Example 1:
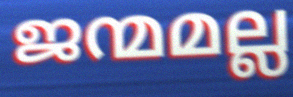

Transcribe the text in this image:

ജന്മമല്ല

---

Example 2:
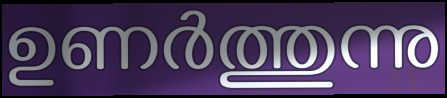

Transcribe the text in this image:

ഉണർത്തുന്നു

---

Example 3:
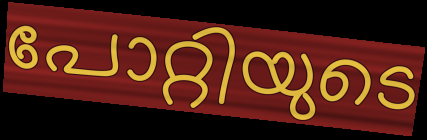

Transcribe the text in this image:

പോറ്റിയുടെ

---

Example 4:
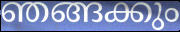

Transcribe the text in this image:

ഞങ്ങക്കും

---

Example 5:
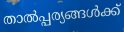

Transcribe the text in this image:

താൽപ്പര്യങ്ങൾക്ക്